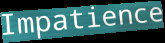
Impatience